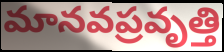
మానవప్రవృత్తి